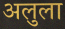
अलुला